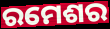
ରମେଶର